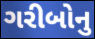
ગરીબોનુ